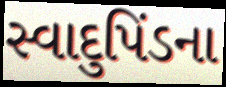
સ્વાદુપિંડના